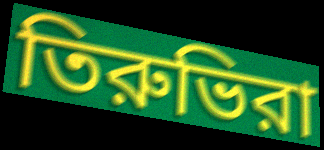
তিরুভিরা